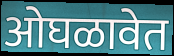
ओघळावेत